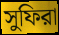
সুফিরা